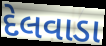
દેલવાડા